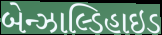
બેન્ઝાલ્ડિહાઇડ